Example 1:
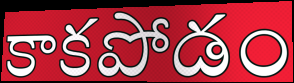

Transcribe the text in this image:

కాకపోడం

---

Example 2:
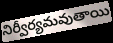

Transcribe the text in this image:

నిర్వీర్యమవుతాయి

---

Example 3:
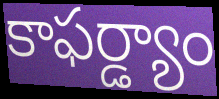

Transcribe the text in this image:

కాఫర్డ్యాం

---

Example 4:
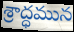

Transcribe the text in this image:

శ్రాద్ధమున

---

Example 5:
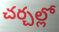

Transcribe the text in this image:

చర్చల్లో